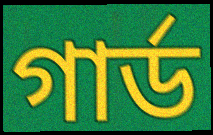
গাৰ্ড